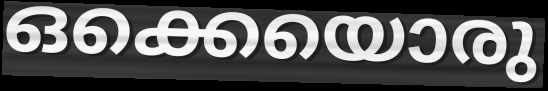
ഒക്കെയൊരു